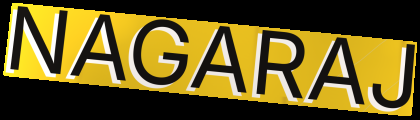
NAGARAJ